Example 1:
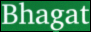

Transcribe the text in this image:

Bhagat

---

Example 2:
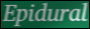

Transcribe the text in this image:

Epidural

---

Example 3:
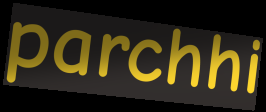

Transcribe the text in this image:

parchhi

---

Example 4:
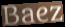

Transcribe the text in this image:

Baez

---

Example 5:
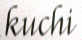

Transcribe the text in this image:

kuchi